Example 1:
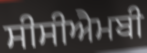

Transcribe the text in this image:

ਸੀਸੀਐਮਬੀ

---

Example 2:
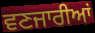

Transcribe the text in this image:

ਵਣਜਾਰੀਆਂ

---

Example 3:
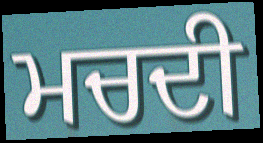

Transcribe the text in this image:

ਮਚਦੀ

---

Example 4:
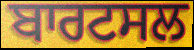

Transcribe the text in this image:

ਬਾਰਟਸਲ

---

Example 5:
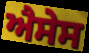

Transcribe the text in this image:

ਐਸੇਸ